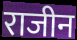
राजीन